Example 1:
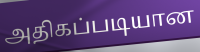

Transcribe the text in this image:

அதிகப்படியான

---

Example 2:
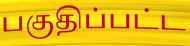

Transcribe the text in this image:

பகுதிப்பட்ட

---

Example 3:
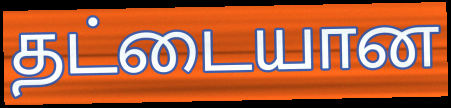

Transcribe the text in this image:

தட்டையான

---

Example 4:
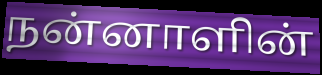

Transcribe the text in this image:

நன்னாளின்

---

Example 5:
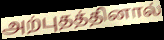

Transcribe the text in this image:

அற்புதத்தினால்